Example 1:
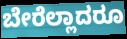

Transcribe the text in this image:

ಬೇರೆಲ್ಲಾದರೂ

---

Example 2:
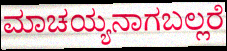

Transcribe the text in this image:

ಮಾಚಯ್ಯನಾಗಬಲ್ಲರೆ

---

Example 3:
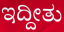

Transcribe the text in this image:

ಇದ್ದೀತು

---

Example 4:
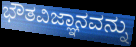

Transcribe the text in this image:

ಭೌತವಿಜ್ಞಾನವನ್ನು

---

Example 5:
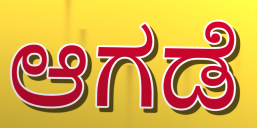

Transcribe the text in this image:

ಆಗಡೆ